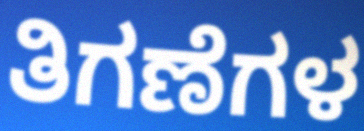
ತಿಗಣೆಗಳ